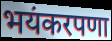
भयंकरपणा